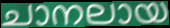
ചാനലായ